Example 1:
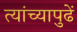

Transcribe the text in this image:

त्यांच्यापुढें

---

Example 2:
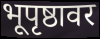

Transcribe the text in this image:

भूपृष्ठावर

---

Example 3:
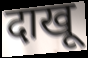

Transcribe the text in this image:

दाखू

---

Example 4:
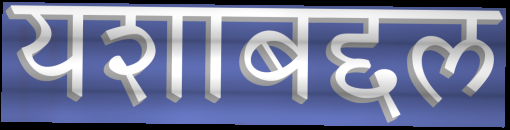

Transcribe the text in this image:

यशाबद्दल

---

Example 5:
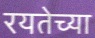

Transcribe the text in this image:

रयतेच्या